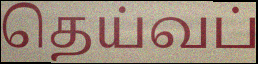
தெய்வப்